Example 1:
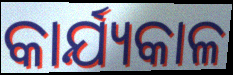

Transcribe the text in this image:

କାର୍ଯ୍ୟକାଳ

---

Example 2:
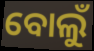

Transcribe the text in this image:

ବୋଲୁଁ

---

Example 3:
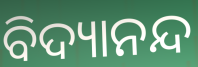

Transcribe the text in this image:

ବିଦ୍ୟାନନ୍ଦ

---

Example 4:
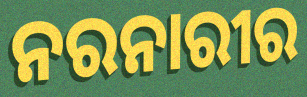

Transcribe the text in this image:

ନରନାରୀର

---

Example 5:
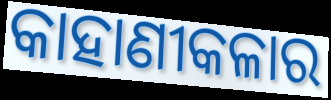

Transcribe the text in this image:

କାହାଣୀକଳାର